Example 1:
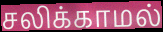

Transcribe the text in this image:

சலிக்காமல்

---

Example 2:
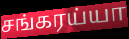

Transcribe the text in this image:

சங்கரய்யா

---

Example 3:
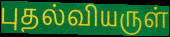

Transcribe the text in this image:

புதல்வியருள்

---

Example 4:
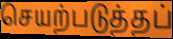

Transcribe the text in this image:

செயற்படுத்தப்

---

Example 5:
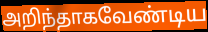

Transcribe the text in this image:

அறிந்தாகவேண்டிய